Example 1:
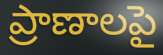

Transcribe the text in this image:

ప్రాణాలపై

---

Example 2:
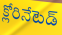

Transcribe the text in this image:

క్లోరినేటెడ్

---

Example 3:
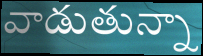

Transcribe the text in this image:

వాడుతున్నా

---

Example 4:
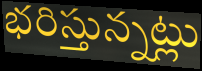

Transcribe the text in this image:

భరిస్తున్నట్లు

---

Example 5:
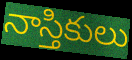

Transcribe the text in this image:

నాస్తికులు